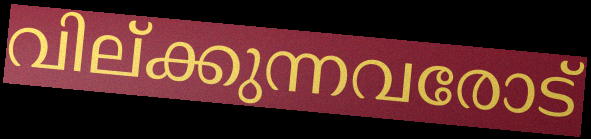
വില്ക്കുന്നവരോട്